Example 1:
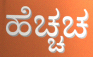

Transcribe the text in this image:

ಹೆಚ್ಚಚ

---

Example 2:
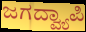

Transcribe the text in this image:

ಜಗದ್ವ್ಯಾಪಿ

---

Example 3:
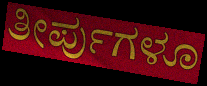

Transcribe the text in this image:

ತೀರ್ಪುಗಳೂ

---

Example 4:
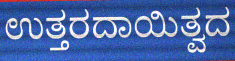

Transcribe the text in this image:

ಉತ್ತರದಾಯಿತ್ವದ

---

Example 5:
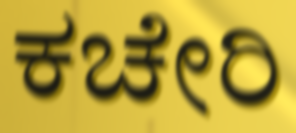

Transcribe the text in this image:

ಕಚೇರಿ